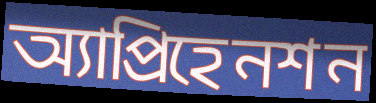
অ্যাপ্রিহেনশন